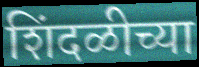
शिंदळीच्या